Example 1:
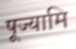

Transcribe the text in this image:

पूज्यामि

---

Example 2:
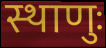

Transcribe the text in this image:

स्थाणुः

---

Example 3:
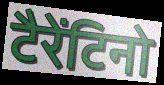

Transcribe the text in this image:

टैरेंटिनो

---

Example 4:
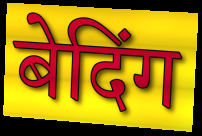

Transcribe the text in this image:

बेदिंग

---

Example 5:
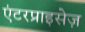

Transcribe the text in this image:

एंटरप्राइसेज़